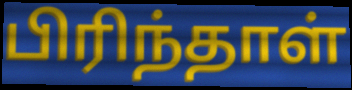
பிரிந்தாள்